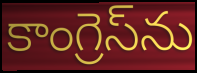
కాంగ్రెస్‌ను